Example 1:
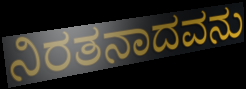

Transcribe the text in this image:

ನಿರತನಾದವನು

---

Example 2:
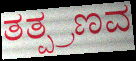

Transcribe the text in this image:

ತತ್ಪ್ರಣವ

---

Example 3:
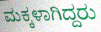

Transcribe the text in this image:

ಮಕ್ಕಳಾಗಿದ್ದರು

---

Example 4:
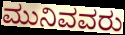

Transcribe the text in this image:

ಮುನಿವವರು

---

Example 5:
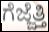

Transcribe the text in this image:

ಗೆಜ್ಜೆತ್ತಿ